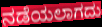
ನಡೆಯಲಾಗದು